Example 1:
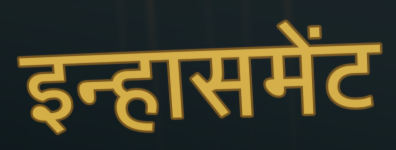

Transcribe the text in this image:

इन्हासमेंट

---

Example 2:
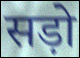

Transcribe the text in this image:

सड़ो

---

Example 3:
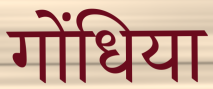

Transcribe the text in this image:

गोंधिया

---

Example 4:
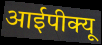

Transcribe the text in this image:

आईपीक्यू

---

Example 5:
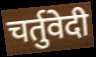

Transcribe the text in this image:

चर्तुवेदी